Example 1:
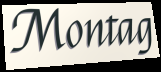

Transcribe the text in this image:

Montag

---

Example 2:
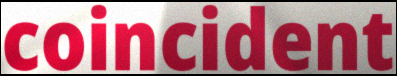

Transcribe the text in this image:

coincident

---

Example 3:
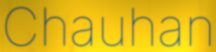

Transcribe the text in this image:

Chauhan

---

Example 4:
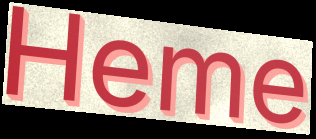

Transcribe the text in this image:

Heme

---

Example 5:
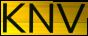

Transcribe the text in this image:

KNV